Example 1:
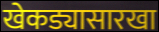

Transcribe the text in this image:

खेकड्यासारखा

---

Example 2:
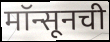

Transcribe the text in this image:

मॉन्सूनची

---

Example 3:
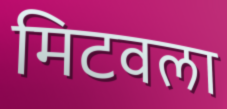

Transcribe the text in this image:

मिटवला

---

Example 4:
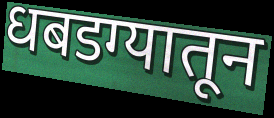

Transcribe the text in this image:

धबडग्यातून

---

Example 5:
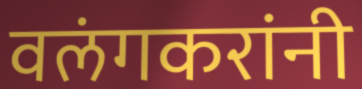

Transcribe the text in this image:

वलंगकरांनी